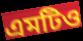
এমটিও